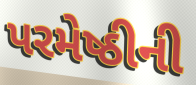
પરમેષ્ઠીની